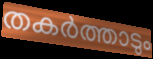
തകർത്താടും